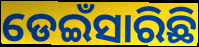
ଡେଇଁସାରିଛି